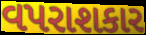
વપરાશકાર